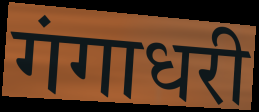
गंगाधरी